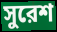
সুরেশ